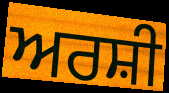
ਅਰਸ਼ੀ